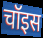
चॉइस